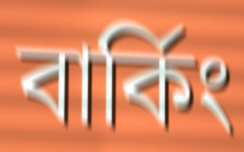
বার্কিং